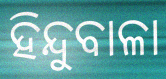
ହିନ୍ଦୁବାଳା